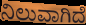
ನಿಲುವಾಗಿದೆ